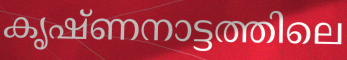
കൃഷ്ണനാട്ടത്തിലെ